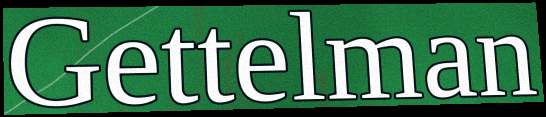
Gettelman